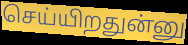
செய்யிறதுன்னு